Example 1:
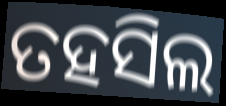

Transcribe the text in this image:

ତହସିଲ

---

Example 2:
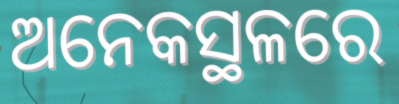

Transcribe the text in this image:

ଅନେକସ୍ଥଳରେ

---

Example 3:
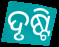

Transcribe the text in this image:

ଦୃଷ୍ଟି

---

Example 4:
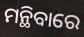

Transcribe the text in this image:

ମନ୍ଥିବାରେ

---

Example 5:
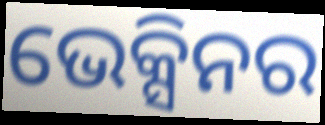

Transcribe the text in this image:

ଭେକ୍ସିନର